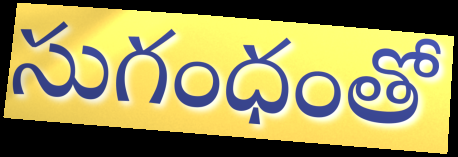
సుగంధంతో